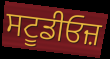
ਸਟੂਡੀਓਜ਼